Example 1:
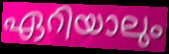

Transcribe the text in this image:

ഏറിയാലും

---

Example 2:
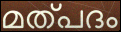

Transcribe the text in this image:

മത്പദം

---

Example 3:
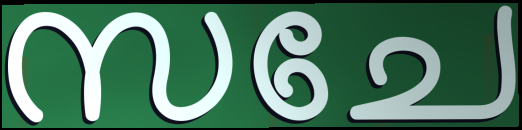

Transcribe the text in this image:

സചേ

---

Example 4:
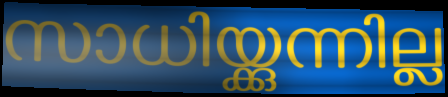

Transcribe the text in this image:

സാധിയ്ക്കുന്നില്ല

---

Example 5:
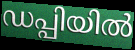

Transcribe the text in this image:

ഡപ്പിയിൽ